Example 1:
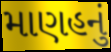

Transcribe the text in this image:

માણહનું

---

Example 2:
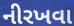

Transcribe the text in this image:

નીરખવા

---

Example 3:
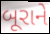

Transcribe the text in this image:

બૂરાને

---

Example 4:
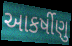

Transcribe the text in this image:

આકર્ષીણુ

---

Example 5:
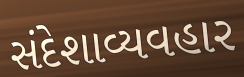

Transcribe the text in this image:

સંદેશાવ્યવહાર